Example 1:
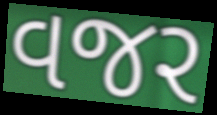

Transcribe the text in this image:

વજર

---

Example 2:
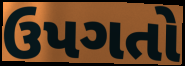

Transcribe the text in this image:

ઉપગતો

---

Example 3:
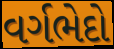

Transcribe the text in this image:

વર્ગભેદો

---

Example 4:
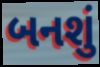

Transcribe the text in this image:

બનશું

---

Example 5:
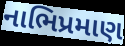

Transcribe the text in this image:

નાભિપ્રમાણ